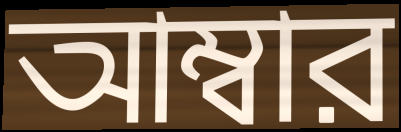
আম্বার